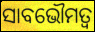
ସାବଭୌମତ୍ୱ